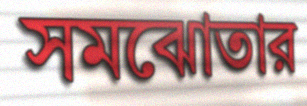
সমঝোতার